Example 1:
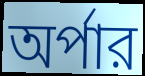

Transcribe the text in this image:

অর্পার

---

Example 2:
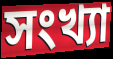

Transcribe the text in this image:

সংখ্যা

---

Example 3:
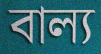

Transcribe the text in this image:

বাল্য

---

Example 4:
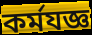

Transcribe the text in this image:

কর্মযজ্ঞ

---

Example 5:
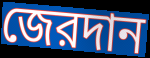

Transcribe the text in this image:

জেরদান